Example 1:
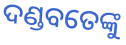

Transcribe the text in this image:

ଦଣ୍ଡବତେଙ୍କୁ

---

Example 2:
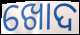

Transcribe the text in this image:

ଖୋଦ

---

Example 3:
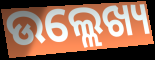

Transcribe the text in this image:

ଉଲ୍ଲେଖ୍ୟ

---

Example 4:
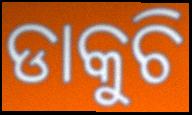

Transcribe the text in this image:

ଡାକୁଚି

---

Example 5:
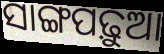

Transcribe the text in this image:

ସାଙ୍ଗପଢ଼ୁଆ